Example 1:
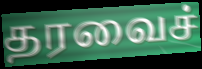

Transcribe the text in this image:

தரவைச்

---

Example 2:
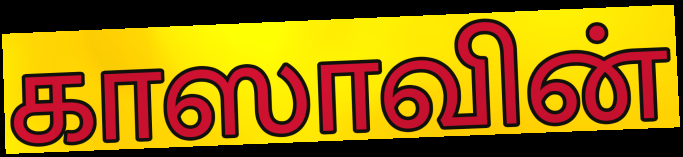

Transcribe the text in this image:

காஸாவின்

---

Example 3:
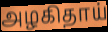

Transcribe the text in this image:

அழகிதாய்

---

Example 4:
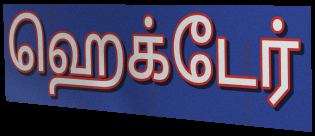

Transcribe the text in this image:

ஹெக்டேர்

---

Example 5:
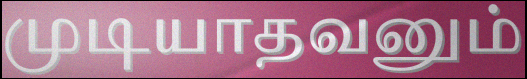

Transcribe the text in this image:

முடியாதவனும்